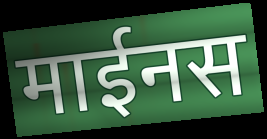
माईनस